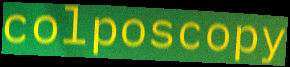
colposcopy